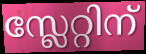
സ്ലേറ്റിന്